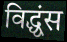
विद्ध्वंस